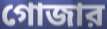
গোজার